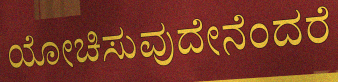
ಯೋಚಿಸುವುದೇನೆಂದರೆ